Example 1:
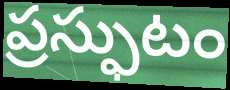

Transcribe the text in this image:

ప్రస్ఫుటం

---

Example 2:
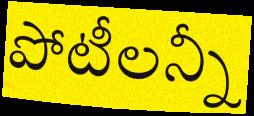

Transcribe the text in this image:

పోటీలన్నీ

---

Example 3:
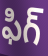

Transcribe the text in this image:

ఫిగ్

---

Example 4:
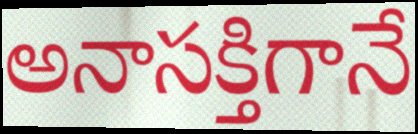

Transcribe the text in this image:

అనాసక్తిగానే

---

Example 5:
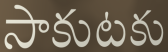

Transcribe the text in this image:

సాకుటకు